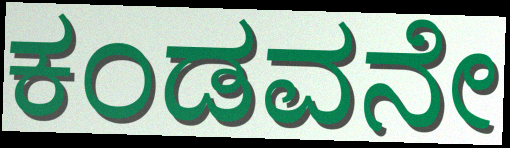
ಕಂಡವನೇ